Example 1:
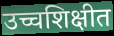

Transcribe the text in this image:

उच्चशिक्षीत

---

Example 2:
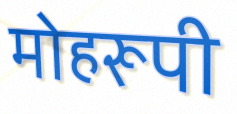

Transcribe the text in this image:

मोहरूपी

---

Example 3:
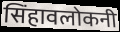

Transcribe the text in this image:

सिंहावलोकनी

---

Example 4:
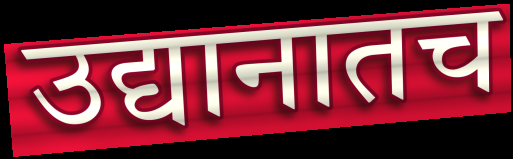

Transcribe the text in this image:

उद्यानातच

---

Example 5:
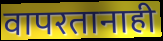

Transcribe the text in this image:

वापरतानाही